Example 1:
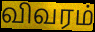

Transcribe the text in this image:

விவரம்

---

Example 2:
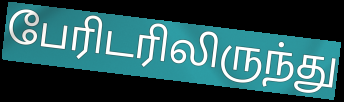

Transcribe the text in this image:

பேரிடரிலிருந்து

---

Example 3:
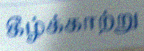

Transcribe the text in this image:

கீழ்க்காற்று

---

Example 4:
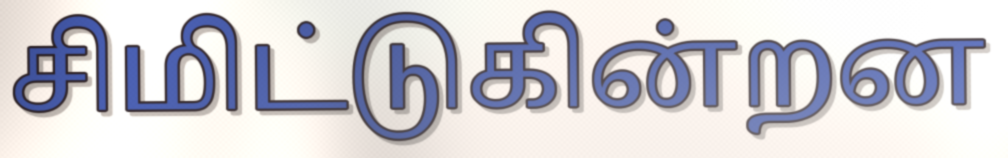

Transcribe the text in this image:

சிமிட்டுகின்றன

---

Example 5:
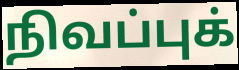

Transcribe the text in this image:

நிவப்புக்